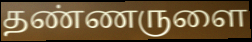
தண்ணருளை